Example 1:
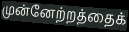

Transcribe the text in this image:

முன்னேற்றத்தைக்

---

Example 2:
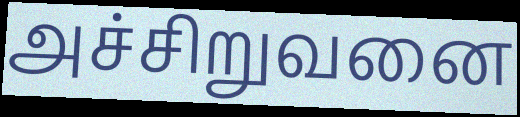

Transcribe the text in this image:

அச்சிறுவனை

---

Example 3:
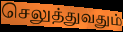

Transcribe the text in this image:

செலுத்துவதும்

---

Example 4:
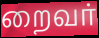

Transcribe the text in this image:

றைவர்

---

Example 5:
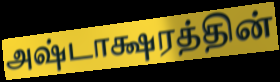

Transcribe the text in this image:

அஷ்டாக்ஷரத்தின்